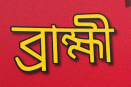
ব্ৰাহ্মী